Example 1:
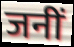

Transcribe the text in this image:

जनीं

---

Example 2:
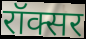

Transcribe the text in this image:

रॉक्सर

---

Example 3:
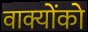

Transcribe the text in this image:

वाक्योंको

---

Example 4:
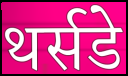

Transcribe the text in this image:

थर्सडे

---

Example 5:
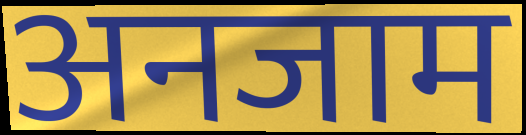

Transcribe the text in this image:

अनजाम